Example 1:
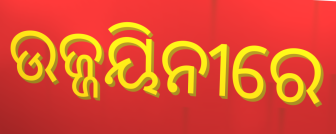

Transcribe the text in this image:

ଉଜ୍ଜୟିନୀରେ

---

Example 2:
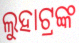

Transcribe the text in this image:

ଲୁହାଟ୍ରଙ୍କ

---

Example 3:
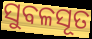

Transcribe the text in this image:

ସୁବଳସୂତ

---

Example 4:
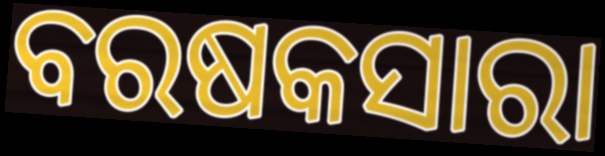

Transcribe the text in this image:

ବରଷକସାରା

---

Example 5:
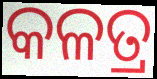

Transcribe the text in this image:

କଳତ୍ର